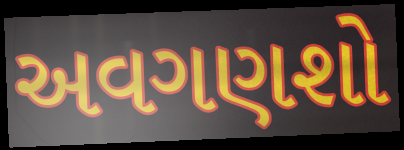
અવગણશો